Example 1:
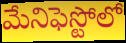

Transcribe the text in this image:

మేనిఫెస్టోలో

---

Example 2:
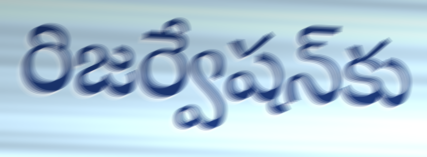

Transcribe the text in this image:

రిజర్వేషన్‌కు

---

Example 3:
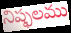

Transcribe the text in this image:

నిష్ఫలము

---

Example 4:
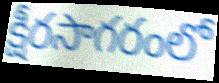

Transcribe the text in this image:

క్షీరసాగరంలో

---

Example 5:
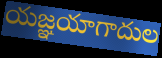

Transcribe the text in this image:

యజ్ఞయాగాదుల